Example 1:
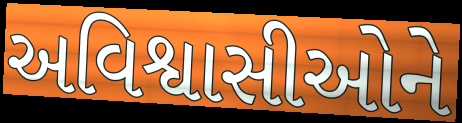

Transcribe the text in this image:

અવિશ્વાસીઓને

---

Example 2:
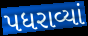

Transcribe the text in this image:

પધરાવ્યાં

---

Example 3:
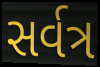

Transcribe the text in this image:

સર્વત્ર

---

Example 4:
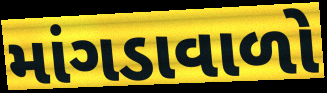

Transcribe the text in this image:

માંગડાવાળો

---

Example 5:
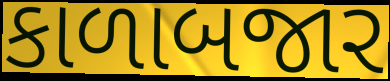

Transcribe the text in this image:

કાળાબજાર